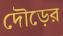
দৌড়ের